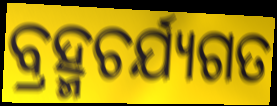
ବ୍ରହ୍ମଚର୍ଯ୍ୟଗତ